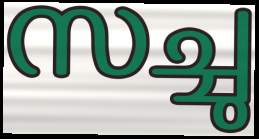
സച്ചു